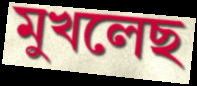
মুখলেছ